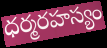
ధర్మరహస్యం